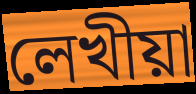
লেখীয়া